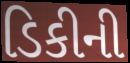
ડિકીની